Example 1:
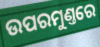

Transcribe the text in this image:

ଉପରମୁଣ୍ତରେ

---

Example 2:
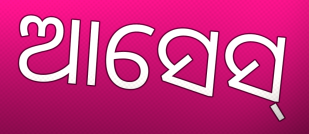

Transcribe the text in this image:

ଆସେସ୍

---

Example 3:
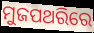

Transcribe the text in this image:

ମୁଜପଥରିରେ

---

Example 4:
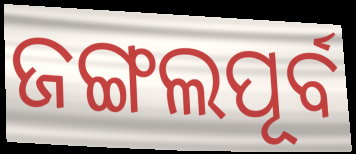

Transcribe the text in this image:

ଜଙ୍ଗଲପୂର୍ବ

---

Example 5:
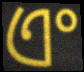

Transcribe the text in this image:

ଏଂ